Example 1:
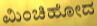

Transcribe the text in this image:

ಮಿಂಚಿಹೋದ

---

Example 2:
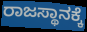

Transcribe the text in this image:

ರಾಜಸ್ಥಾನಕ್ಕೆ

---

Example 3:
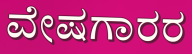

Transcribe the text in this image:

ವೇಷಗಾರರ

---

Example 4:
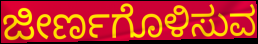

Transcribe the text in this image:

ಜೀರ್ಣಗೊಳಿಸುವ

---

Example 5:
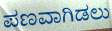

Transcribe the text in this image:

ಪಣವಾಗಿಡಲು